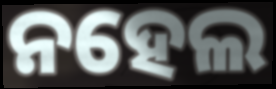
ନହେଲ